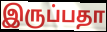
இருப்பதா